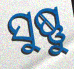
ସୁଷ୍ଣୁ